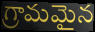
గ్రామమైన